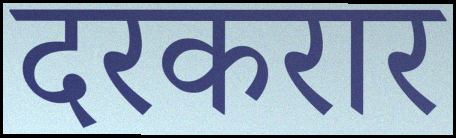
दरकरार